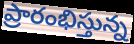
ప్రారంభిస్తున్న